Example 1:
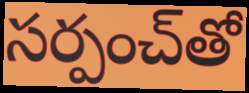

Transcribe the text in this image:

సర్పంచ్‌తో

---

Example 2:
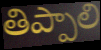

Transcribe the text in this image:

తిప్పాలి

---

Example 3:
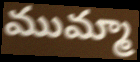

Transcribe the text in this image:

ముమ్మా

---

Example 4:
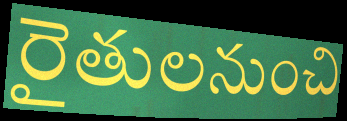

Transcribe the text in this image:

రైతులనుంచి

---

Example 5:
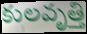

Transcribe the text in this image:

కులవృత్తి